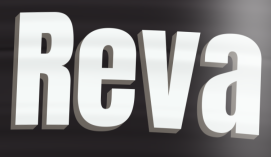
Reva